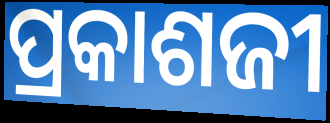
ପ୍ରକାଶଜୀ